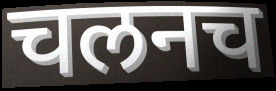
चलनच